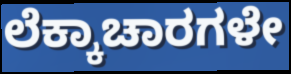
ಲೆಕ್ಕಾಚಾರಗಳೇ